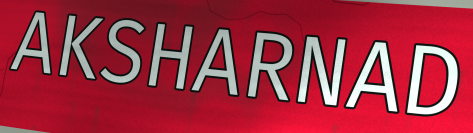
AKSHARNAD